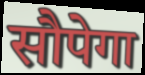
सौपेगा